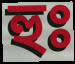
হুঃ